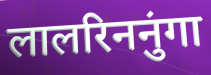
लालरिननुंगा